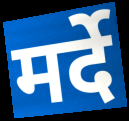
मर्दे